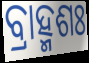
ବ୍ରାହ୍ମଶଃ